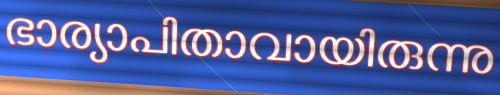
ഭാര്യാപിതാവായിരുന്നു